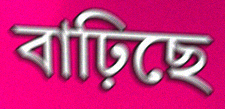
বাঢ়িছে